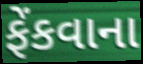
ફેંકવાના